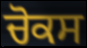
ਚੋਕਸ